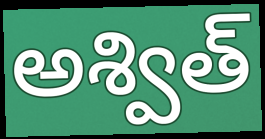
అశ్విత్